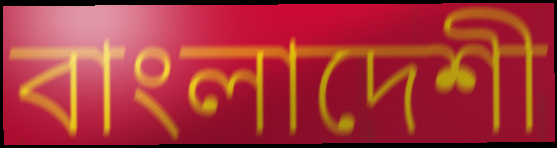
বাংলাদেশী